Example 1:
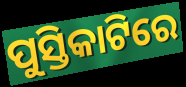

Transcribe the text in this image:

ପୁସ୍ତିକାଟିରେ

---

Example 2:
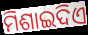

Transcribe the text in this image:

ମିଶାଇଦିଏ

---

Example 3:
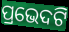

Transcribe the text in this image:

ପ୍ରଭେଦଟି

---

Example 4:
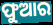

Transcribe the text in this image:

ଫୁଆର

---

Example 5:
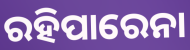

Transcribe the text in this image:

ରହିପାରେନା